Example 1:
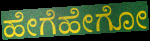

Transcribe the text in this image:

ಹೇಗೆಹೇಗೋ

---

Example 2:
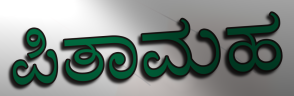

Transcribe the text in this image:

ಪಿತಾಮಹ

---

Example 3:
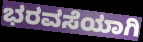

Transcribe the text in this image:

ಭರವಸೆಯಾಗಿ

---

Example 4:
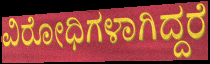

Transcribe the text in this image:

ವಿರೋಧಿಗಳಾಗಿದ್ದರೆ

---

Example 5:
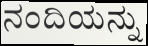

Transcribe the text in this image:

ನಂದಿಯನ್ನು